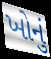
ખોનું